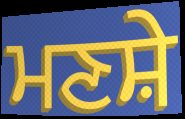
ਮਣਸ਼ੇ